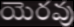
యెరవు